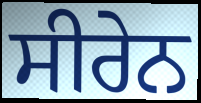
ਸੀਰੇਨ